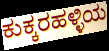
ಕುಕ್ಕರಹಳ್ಳಿಯ